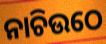
ନାଚିଉଠେ